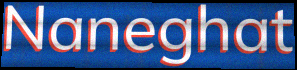
Naneghat